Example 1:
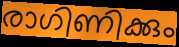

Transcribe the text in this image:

രാഗിണിക്കും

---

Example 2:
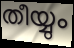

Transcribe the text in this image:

തീയ്യും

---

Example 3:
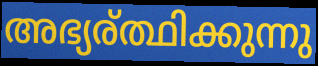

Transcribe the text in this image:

അഭ്യര്ത്ഥിക്കുന്നു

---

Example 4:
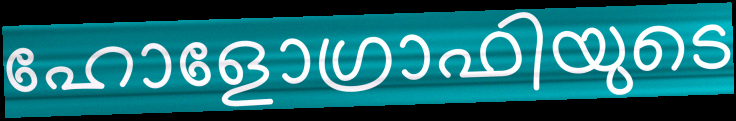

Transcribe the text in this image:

ഹോളോഗ്രാഫിയുടെ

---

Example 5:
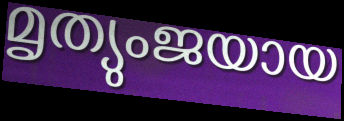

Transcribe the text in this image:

മൃത്യുംജയായ